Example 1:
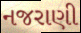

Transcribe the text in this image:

નજરાણી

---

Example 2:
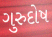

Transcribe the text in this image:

ગુરુદોષ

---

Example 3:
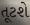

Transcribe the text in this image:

તૂટશે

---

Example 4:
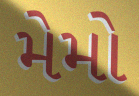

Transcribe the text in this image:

મેમો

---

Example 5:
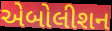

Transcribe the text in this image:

એબોલીશન